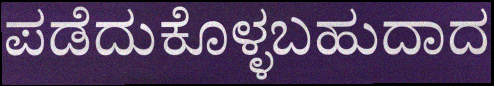
ಪಡೆದುಕೊಳ್ಳಬಹುದಾದ